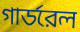
গার্ডরেল